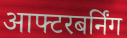
आफ्टरबर्निंग